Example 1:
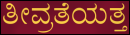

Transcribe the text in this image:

ತೀವ್ರತೆಯತ್ತ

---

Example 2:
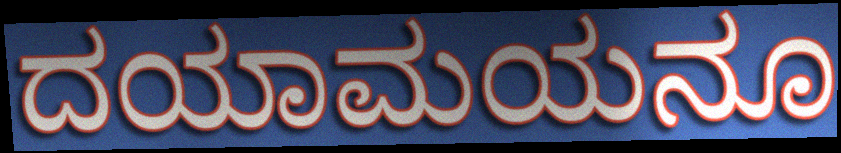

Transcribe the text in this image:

ದಯಾಮಯನೂ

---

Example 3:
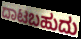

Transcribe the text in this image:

ದಾಟಬಹುದು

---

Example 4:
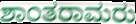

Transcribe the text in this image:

ಶಾಂತರಾಮರು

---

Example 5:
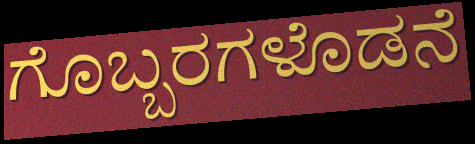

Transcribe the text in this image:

ಗೊಬ್ಬರಗಳೊಡನೆ